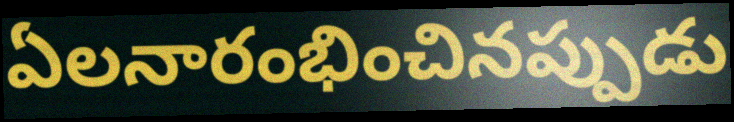
ఏలనారంభించినప్పుడు